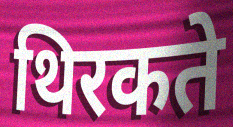
थिरकते